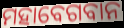
ମହାବେଗବାନ